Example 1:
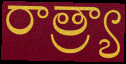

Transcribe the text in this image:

రాత్ర్యా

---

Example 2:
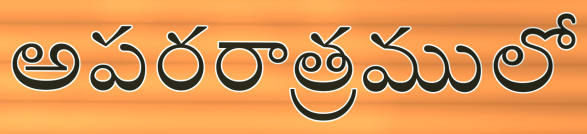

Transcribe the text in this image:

అపరరాత్రములో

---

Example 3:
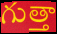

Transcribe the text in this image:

గుత్తా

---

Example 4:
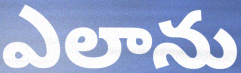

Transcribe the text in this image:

ఎలాను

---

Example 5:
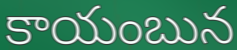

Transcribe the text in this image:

కాయంబున